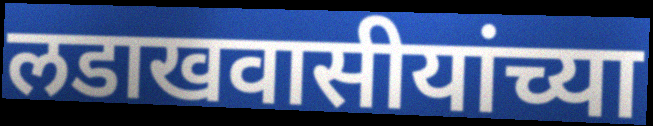
लडाखवासीयांच्या